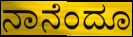
ನಾನೆಂದೂ